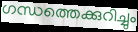
ഗന്ധത്തെക്കുറിച്ചും